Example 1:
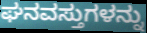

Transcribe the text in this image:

ಘನವಸ್ತುಗಳನ್ನು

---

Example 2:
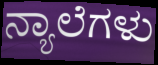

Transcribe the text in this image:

ನ್ಯಾಲೆಗಳು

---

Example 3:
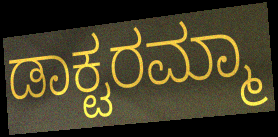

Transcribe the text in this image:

ಡಾಕ್ಟರಮ್ಮಾ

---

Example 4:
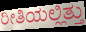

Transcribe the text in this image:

ರೀತಿಯಲ್ಲಿತ್ತು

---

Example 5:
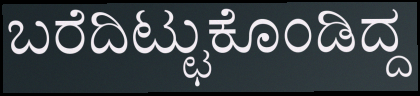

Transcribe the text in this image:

ಬರೆದಿಟ್ಟುಕೊಂಡಿದ್ದ